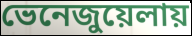
ভেনেজুয়েলায়